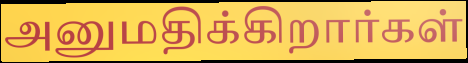
அனுமதிக்கிறார்கள்